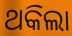
ଥକିଲା